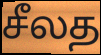
சீலத